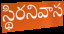
స్థిరనివాస